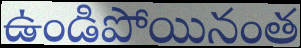
ఉండిపోయినంత